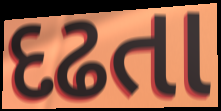
દઢતા